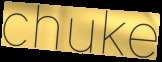
chuke